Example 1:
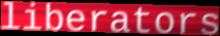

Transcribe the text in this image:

liberators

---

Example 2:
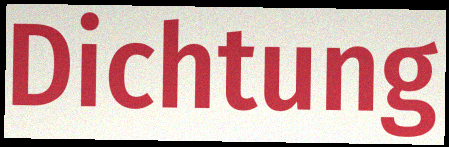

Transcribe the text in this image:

Dichtung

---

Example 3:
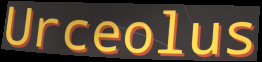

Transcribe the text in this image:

Urceolus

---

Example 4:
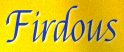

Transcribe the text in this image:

Firdous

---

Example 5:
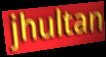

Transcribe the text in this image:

jhultan